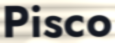
Pisco